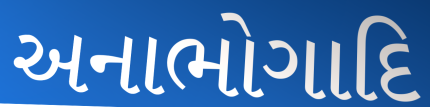
અનાભોગાદિ